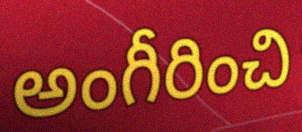
అంగీరించి